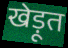
खेड़ूत